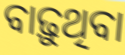
ବାଢ଼ୁଥିବା